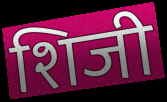
शिजी